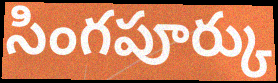
సింగపూర్కు